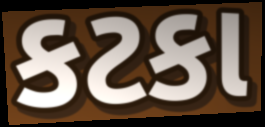
કટકા